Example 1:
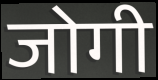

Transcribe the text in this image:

जोगी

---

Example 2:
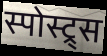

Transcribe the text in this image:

स्पोस्ट्र्स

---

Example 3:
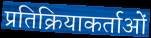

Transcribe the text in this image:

प्रतिक्रियाकर्ताओं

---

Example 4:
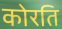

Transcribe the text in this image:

कोरति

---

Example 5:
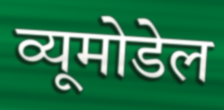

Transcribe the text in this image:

व्यूमोडेल